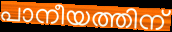
പാനീയത്തിന്